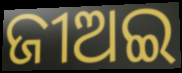
ଜୀଅଇ